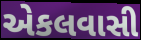
એકલવાસી